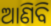
ଆଣିବି